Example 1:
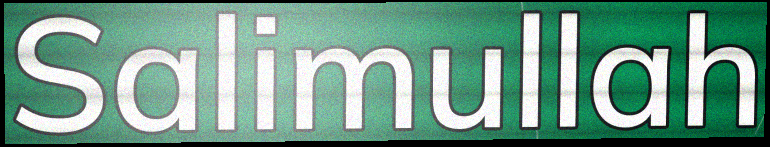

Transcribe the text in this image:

Salimullah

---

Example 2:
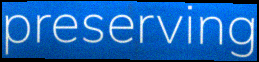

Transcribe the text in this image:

preserving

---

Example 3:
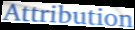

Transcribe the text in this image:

Attribution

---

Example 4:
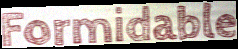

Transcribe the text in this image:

Formidable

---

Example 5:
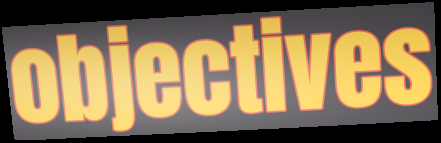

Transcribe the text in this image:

objectives